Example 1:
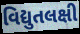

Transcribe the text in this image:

વિદ્યુતલક્ષી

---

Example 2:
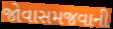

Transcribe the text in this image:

જોવાસમજવાની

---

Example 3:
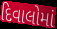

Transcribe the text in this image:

દિવાલોમાં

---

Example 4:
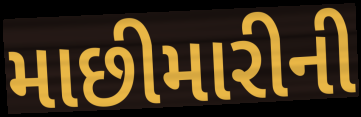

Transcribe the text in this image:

માછીમારીની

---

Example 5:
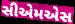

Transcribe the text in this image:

સીએમએસ